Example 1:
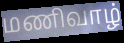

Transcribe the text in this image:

மணிவாழ்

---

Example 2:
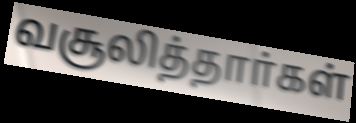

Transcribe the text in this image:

வசூலித்தார்கள்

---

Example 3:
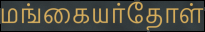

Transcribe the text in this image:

மங்கையர்தோள்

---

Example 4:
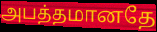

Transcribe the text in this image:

அபத்தமானதே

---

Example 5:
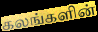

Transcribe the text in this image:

கலங்களின்